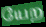
யேற